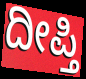
ದೀಪ್ತಿ